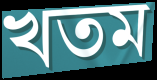
খতম